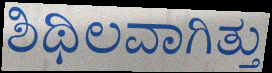
ಶಿಥಿಲವಾಗಿತ್ತು